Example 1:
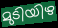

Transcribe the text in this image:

മുടിയിഴ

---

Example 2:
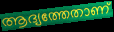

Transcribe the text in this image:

ആദ്യത്തേതാണ്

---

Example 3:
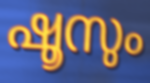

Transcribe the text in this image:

ഷൂസും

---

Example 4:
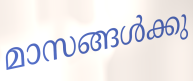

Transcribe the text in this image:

മാസങ്ങൾക്കു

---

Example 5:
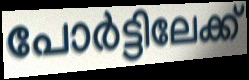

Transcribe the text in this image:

പോർട്ടിലേക്ക്